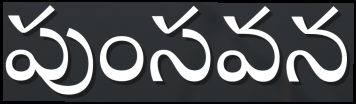
పుంసవన